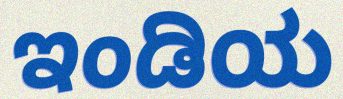
ಇಂಡಿಯ